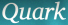
Quark